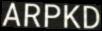
ARPKD